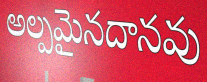
అల్పమైనదానవు